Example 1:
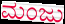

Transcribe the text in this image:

ಮಂಜು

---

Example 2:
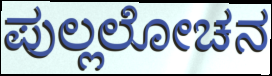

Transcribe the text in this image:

ಪುಲ್ಲಲೋಚನ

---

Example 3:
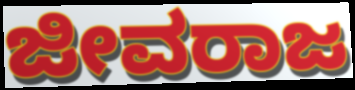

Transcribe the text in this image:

ಜೀವರಾಜ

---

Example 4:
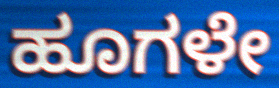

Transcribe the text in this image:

ಹೂಗಳೇ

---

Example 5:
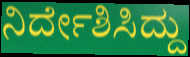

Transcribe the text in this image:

ನಿರ್ದೇಶಿಸಿದ್ದು